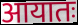
आयातः